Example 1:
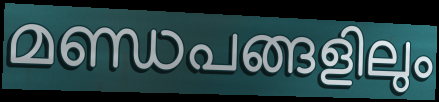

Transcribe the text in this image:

മണ്ഡപങ്ങളിലും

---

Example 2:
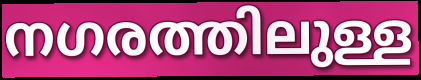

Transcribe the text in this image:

നഗരത്തിലുള്ള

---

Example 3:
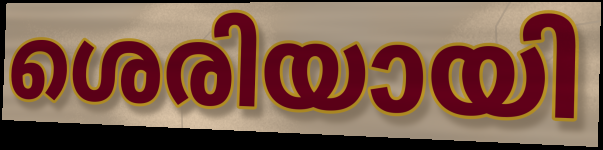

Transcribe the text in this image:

ശെരിയായി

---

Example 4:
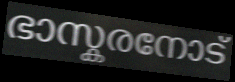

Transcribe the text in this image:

ഭാസ്കരനോട്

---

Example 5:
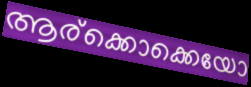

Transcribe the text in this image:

ആര്ക്കൊക്കെയോ